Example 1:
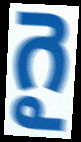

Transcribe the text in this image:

గై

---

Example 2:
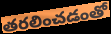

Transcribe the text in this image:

తరలించడంతో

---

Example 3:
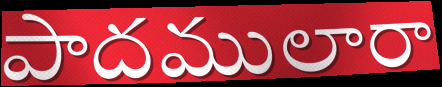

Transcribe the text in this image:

పాదములారా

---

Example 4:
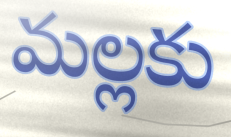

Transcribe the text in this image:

మల్లకు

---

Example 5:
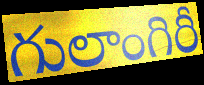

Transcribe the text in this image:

గులాంగిరీ